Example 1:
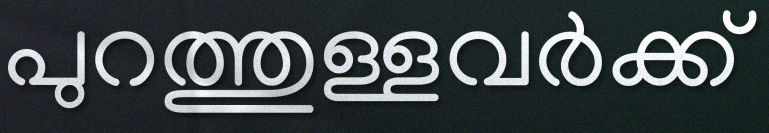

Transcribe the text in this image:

പുറത്തുള്ളവർക്ക്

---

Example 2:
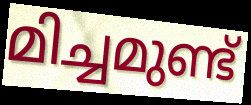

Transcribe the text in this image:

മിച്ചമുണ്ട്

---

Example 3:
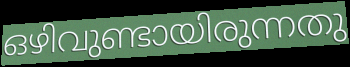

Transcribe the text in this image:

ഒഴിവുണ്ടായിരുന്നതു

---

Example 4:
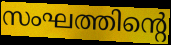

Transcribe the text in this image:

സംഘത്തിന്റെ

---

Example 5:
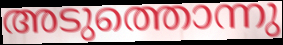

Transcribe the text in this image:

അടുത്തൊന്നു